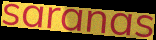
saranas